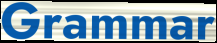
Grammar